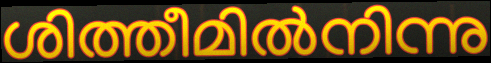
ശിത്തീമിൽനിന്നു